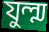
যুল্ম